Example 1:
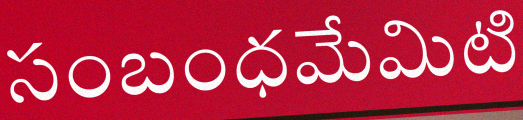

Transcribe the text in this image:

సంబంధమేమిటి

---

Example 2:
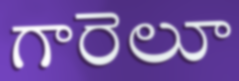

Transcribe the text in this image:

గారెలూ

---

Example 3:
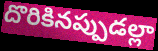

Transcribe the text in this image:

దొరికినప్పుడల్లా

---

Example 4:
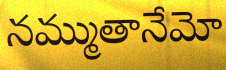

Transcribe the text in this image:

నమ్ముతానేమో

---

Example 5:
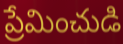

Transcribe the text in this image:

ప్రేమించుడి